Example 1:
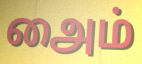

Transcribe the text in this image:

அைம்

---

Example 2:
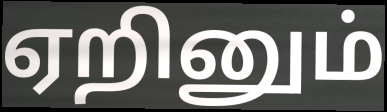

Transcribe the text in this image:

ஏறினும்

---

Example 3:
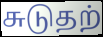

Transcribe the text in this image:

சுடுதற்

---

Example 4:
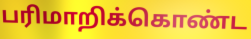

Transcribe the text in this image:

பரிமாறிக்கொண்ட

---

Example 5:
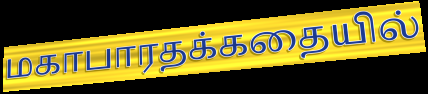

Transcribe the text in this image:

மகாபாரதக்கதையில்